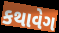
કથાવેગ